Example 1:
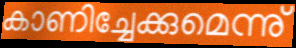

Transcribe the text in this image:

കാണിച്ചേക്കുമെന്നു്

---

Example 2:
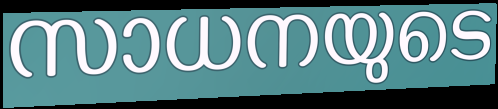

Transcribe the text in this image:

സാധനയുടെ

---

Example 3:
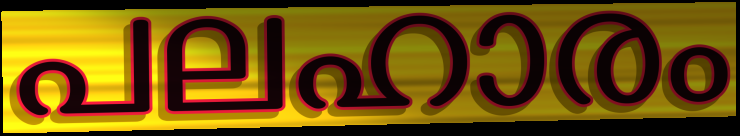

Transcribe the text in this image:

പലഹാരം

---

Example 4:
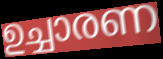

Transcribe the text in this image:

ഉച്ചാരണ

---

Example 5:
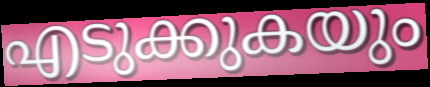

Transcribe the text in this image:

എടുക്കുകയും